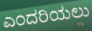
ಎಂದರಿಯಲು